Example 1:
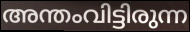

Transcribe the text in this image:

അന്തംവിട്ടിരുന്ന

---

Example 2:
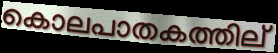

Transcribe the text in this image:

കൊലപാതകത്തില്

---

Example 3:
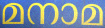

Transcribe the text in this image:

മനാമ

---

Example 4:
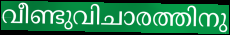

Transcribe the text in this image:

വീണ്ടുവിചാരത്തിനു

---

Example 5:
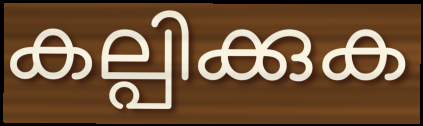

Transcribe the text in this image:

കല്പിക്കുക